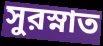
সুরস্নাত